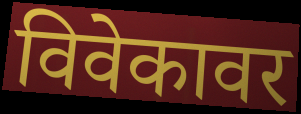
विवेकावर